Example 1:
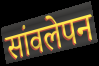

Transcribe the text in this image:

सांवलेपन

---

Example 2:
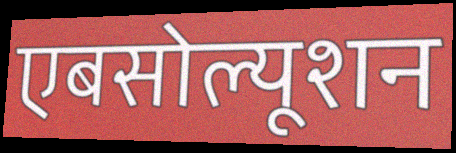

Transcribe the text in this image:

एबसोल्यूशन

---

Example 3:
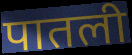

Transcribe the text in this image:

पातली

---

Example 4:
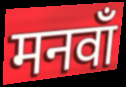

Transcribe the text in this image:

मनवाँ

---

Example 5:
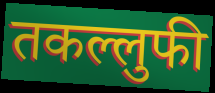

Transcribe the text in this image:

तकल्लुफी